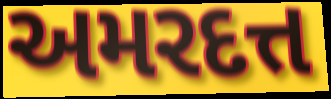
અમરદત્ત